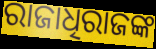
ରାଜାଧିରାଜଙ୍କ